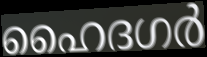
ഹൈദഗർ